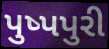
પુષ્પપુરી